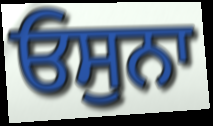
ਓਸੁਨਾ